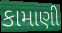
કામાણી